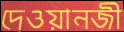
দেওয়ানজী